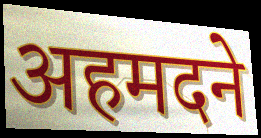
अहमदने